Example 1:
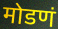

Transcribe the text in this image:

मोडणं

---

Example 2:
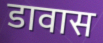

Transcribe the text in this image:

डावास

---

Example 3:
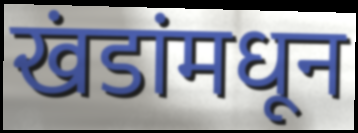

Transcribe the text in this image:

खंडांमधून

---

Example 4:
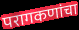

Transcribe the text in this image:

परागकणांचा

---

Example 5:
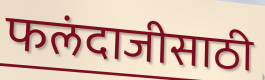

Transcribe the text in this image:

फलंदाजीसाठी